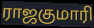
ராஜகுமாரி